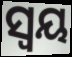
ସ୍ବୟ